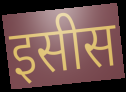
इसीस